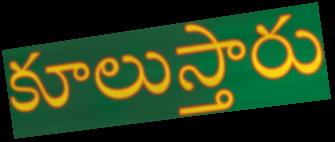
కూలుస్తారు